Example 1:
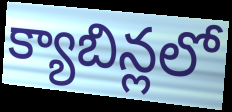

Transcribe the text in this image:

క్యాబిన్లలో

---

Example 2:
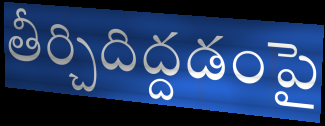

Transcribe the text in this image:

తీర్చిదిద్దడంపై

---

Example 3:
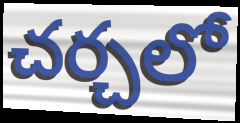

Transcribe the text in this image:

చర్చలో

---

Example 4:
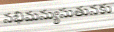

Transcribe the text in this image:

నభిమన్యుసుతునకు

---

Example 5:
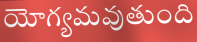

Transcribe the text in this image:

యోగ్యమవుతుంది